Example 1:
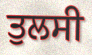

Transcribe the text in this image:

ਤੁਲਸੀ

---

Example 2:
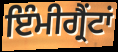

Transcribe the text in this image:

ਇੰਮੀਗ੍ਰੈਂਟਾਂ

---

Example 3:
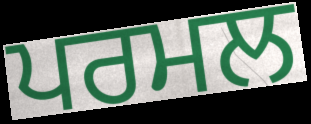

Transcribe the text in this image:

ਪਰਮਲ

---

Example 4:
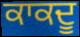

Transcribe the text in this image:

ਕਾਕਦੂ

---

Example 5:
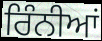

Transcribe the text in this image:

ਰਿੰਨੀਆਂ